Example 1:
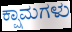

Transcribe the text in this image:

ಕ್ಷಾಮಗಳು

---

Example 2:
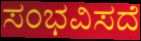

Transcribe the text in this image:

ಸಂಭವಿಸದೆ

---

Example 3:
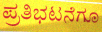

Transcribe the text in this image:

ಪ್ರತಿಭಟನೆಗೂ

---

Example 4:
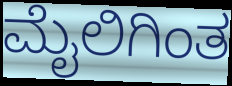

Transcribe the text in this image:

ಮೈಲಿಗಿಂತ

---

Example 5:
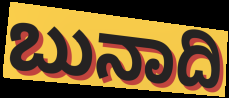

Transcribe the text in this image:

ಬುನಾದಿ